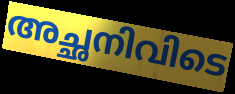
അച്ഛനിവിടെ